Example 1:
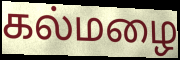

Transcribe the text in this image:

கல்மழை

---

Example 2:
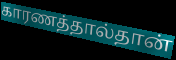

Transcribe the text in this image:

காரணத்தால்தான்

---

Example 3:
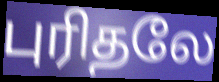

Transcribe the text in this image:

புரிதலே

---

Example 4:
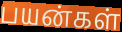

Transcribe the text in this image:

பயன்கள்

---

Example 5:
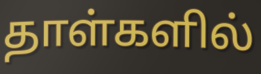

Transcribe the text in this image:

தாள்களில்